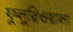
ফুলুরিওয়ালা